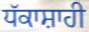
ਧੱਕਾਸ਼ਾਹੀ